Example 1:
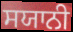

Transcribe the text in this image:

ਸਯਾਨੀ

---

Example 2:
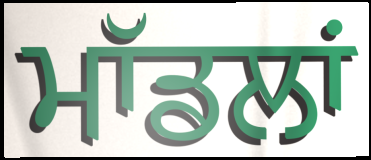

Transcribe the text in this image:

ਮਾੱਡਲਾਂ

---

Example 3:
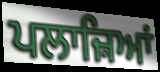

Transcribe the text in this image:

ਪਲਾਜ਼ਿਆਂ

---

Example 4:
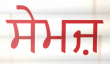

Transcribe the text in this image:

ਸੇਮਜ਼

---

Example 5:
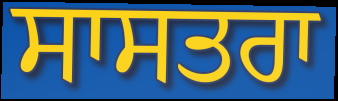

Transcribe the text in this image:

ਸਾਸਤਰਾ